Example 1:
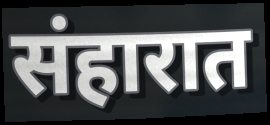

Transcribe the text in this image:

संहारात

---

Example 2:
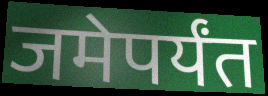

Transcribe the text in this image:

जमेपर्यंत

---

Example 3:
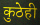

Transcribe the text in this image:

कुठेही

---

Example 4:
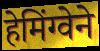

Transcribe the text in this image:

हेमिंग्वेने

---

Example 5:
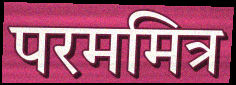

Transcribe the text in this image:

परममित्र